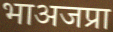
भाअजप्रा